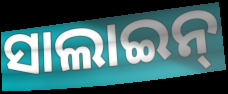
ସାଲାଇନ୍